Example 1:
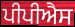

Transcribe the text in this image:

ਪੀਪੀਐਸ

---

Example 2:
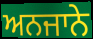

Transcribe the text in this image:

ਅਨਜਾਨੇ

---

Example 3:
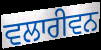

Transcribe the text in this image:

ਵਲਾਰੀਵਨ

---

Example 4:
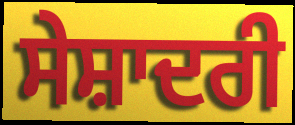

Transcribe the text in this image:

ਸੇਸ਼ਾਦਰੀ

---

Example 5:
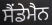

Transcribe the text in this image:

ਸੈਂਡੇਮੈਨ